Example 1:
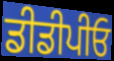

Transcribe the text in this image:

ਡੀਡੀਪੀਓ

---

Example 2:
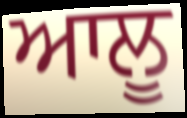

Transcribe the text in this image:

ਆਲੂ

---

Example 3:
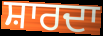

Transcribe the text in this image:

ਸ਼ਾਰਦਾ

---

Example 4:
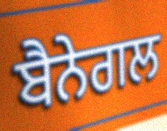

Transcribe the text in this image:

ਬੈਨੇਗਲ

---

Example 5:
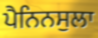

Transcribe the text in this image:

ਪੈਨਿਨਸੁਲਾ